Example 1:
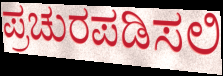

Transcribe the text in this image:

ಪ್ರಚುರಪಡಿಸಲಿ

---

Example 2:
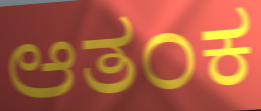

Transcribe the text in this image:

ಆತಂಕ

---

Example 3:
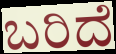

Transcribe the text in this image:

ಬರಿದೆ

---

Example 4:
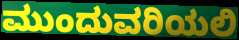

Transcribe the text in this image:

ಮುಂದುವರಿಯಲಿ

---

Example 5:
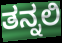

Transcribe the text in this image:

ತನ್ನಲಿ